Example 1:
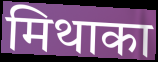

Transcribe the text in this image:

मिथाका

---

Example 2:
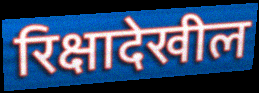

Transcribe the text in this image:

रिक्षादेखील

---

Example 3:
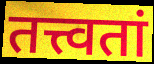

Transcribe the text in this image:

तत्त्वतां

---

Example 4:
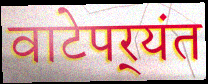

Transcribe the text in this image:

वाटेपर्यंत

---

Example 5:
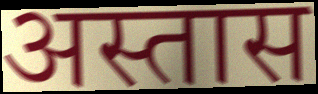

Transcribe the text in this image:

अस्तास